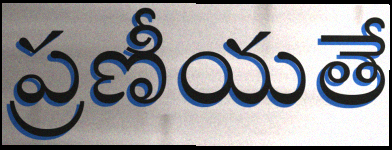
ప్రణీయతే